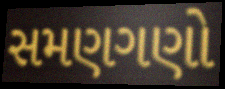
સમણગણો